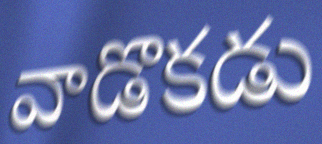
వాడొకడు